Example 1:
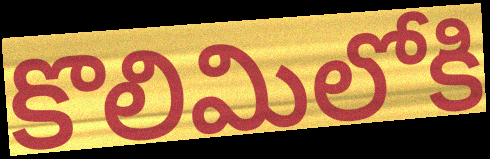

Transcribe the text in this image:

కొలిమిలోకి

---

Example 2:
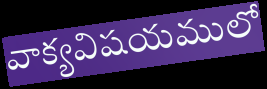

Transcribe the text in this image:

వాక్యవిషయములో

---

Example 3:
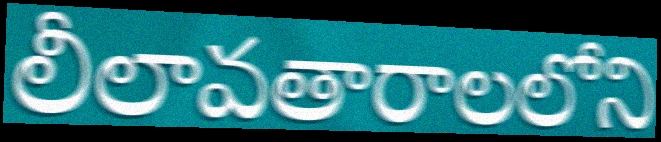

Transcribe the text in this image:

లీలావతారాలలోని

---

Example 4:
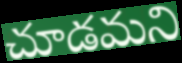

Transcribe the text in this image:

చూడమని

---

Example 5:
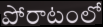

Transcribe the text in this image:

పోరాటంలో